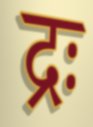
द्रः